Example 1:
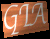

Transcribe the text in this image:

GIA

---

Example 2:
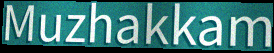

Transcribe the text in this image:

Muzhakkam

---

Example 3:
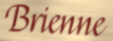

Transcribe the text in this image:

Brienne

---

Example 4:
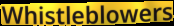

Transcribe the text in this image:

Whistleblowers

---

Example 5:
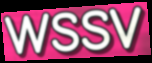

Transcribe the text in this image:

WSSV